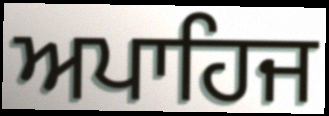
ਅਪਾਹਿਜ